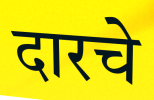
दारचे